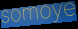
somoye